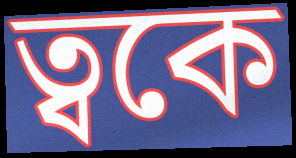
ত্বকে